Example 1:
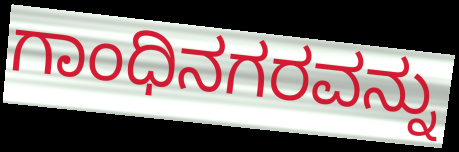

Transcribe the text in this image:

ಗಾಂಧಿನಗರವನ್ನು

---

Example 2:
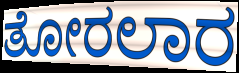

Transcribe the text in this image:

ತೋರಲಾರ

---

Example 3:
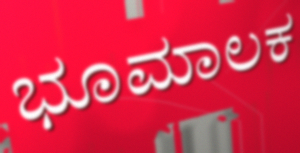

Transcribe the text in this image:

ಭೂಮಾಲಕ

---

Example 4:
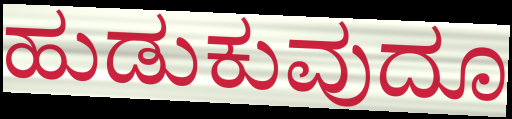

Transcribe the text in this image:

ಹುಡುಕುವುದೂ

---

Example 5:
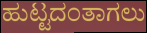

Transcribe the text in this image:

ಹುಟ್ಟದಂತಾಗಲು